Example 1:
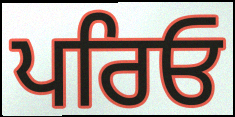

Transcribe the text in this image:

ਪਰਿਓ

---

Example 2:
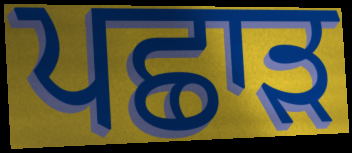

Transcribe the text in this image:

ਪਛਾੜ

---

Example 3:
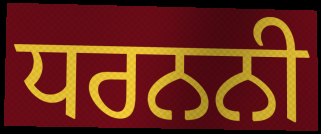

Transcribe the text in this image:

ਧਰਨਨੀ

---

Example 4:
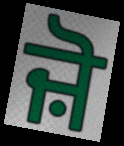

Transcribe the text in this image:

ਜ਼ੋ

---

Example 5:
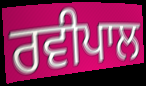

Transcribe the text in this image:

ਰਵੀਪਾਲ